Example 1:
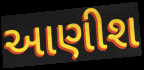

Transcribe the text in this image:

આણીશ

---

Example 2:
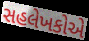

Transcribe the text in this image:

સહલેખકોએ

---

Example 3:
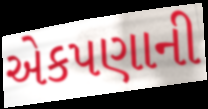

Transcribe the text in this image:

એકપણાની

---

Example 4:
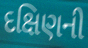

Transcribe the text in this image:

દક્ષિણની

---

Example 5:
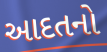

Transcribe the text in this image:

આદતનો